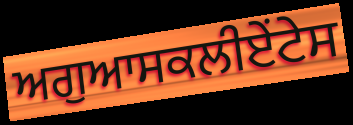
ਅਗੁਆਸਕਲੀਏਂਟੇਸ